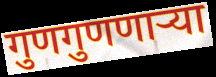
गुणगुणणाऱ्या